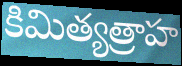
కిమిత్యత్రాహ